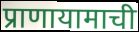
प्राणायामाची